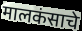
मालकंसाचे